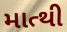
માત્થી